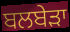
ਬਲਬੇਡ਼ਾ